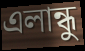
এলান্ধু